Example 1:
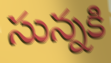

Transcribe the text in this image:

సున్నకి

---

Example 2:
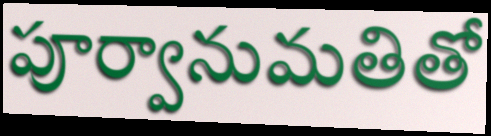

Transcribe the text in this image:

పూర్వానుమతితో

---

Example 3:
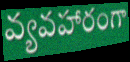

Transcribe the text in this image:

వ్యవహారంగా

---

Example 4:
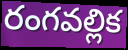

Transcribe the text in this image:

రంగవల్లిక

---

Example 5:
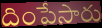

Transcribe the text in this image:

దింపేసారు